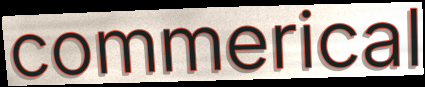
commerical